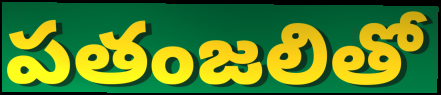
పతంజలితో